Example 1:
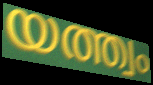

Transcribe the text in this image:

യത്ത്വം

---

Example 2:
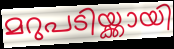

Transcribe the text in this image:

മറുപടിയ്ക്കായി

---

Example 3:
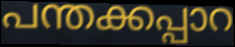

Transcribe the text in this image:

പന്തക്കപ്പാറ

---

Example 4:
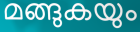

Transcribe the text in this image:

മങ്ങുകയും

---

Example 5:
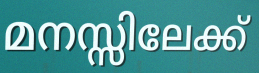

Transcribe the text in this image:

മനസ്സിലേക്ക്